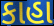
કાહા